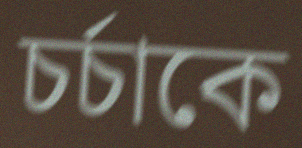
চর্চাকে